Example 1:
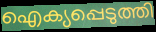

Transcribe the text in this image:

ഐക്യപ്പെടുത്തി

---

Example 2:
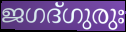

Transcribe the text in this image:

ജഗദ്ഗുരുഃ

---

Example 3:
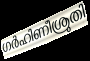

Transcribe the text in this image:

ഗർഹിണീശ്രുതി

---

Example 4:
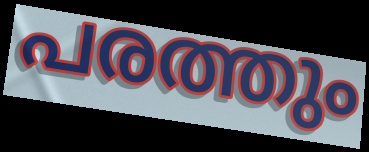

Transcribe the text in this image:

പരത്തും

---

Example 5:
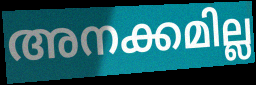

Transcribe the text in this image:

അനക്കമില്ല